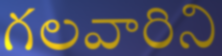
గలవారిని